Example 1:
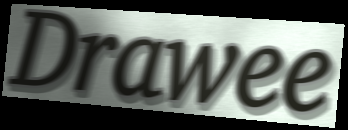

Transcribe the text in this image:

Drawee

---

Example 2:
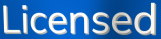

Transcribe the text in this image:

Licensed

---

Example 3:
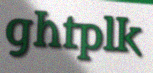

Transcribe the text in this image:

ghtplk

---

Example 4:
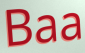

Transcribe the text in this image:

Baa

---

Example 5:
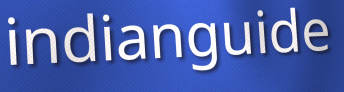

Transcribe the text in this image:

indianguide